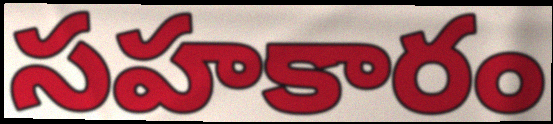
సహకారం